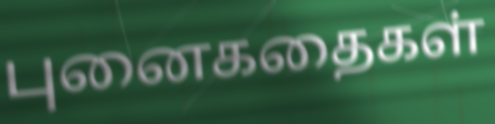
புனைகதைகள்